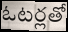
ఓటర్లతో